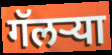
गॅलऱ्या